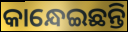
କାନ୍ଧେଇଛନ୍ତି